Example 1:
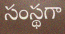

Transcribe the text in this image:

సంస్థగా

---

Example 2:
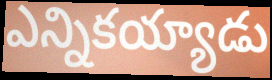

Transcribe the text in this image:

ఎన్నికయ్యాడు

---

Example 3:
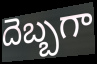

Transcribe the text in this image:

దెబ్బగా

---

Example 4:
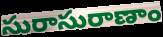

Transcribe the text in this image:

సురాసురాణాం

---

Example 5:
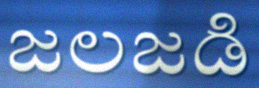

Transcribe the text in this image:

జలజడి